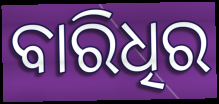
ବାରିଧିର